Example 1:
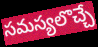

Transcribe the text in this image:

సమస్యలొచ్చే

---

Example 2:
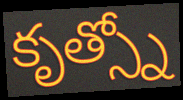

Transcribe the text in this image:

కృత్స్నో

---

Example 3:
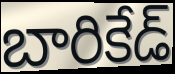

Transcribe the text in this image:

బారికేడ్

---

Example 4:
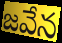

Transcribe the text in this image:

జవేన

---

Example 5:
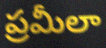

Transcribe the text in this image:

ప్రమీలా